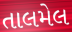
તાલમેલ